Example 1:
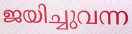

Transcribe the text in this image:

ജയിച്ചുവന്ന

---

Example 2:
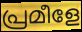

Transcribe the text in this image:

പ്രമീളേ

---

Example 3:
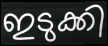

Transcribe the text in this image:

ഇടുക്കി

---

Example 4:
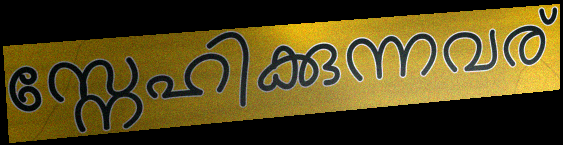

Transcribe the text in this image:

സ്നേഹിക്കുന്നവര്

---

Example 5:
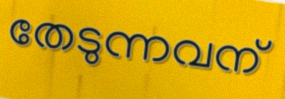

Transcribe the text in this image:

തേടുന്നവന്